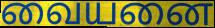
வையனை